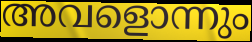
അവളൊന്നും